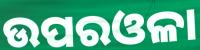
ଉପରଓଳା